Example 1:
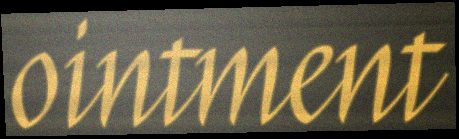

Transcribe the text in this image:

ointment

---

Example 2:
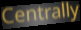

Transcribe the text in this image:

Centrally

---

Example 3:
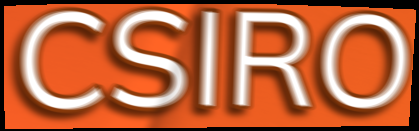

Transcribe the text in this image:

CSIRO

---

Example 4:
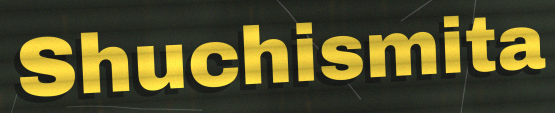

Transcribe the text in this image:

Shuchismita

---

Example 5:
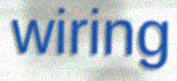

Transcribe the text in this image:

wiring